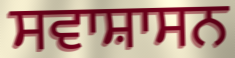
ਸਵਾਸ਼ਾਸਨ